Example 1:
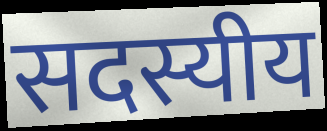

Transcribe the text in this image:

सदस्यीय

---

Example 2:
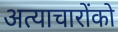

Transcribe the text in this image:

अत्याचारोंको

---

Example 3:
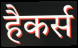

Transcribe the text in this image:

हैकर्स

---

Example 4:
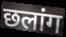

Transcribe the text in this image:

छलांग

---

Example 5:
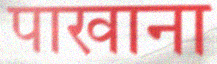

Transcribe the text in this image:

पाखाना